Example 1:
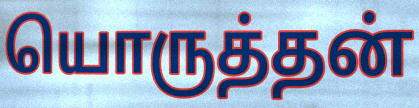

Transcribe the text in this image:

யொருத்தன்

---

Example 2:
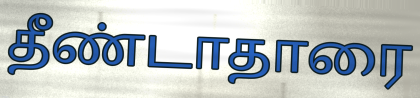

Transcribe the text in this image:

தீண்டாதாரை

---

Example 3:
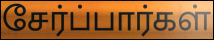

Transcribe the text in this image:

சேர்ப்பார்கள்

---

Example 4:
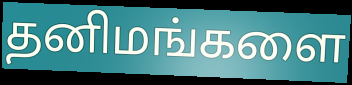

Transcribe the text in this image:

தனிமங்களை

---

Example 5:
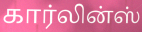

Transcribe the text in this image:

கார்லின்ஸ்